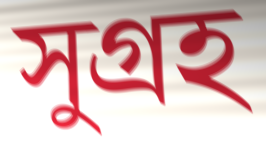
সুগ্রহ